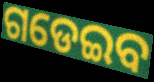
ଗଡେଇବ